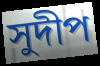
সুদীপ